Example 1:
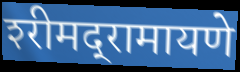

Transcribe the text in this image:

श्रीमद्‌रामायणे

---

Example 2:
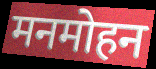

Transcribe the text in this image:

मनमोहन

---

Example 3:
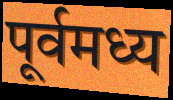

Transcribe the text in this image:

पूर्वमध्य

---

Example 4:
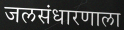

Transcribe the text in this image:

जलसंधारणाला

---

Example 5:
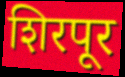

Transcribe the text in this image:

शिरपूर